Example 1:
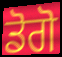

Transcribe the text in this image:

ਡੋਗੋ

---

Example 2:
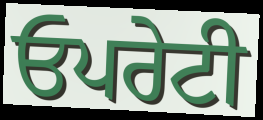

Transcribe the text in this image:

ਓਪਰੇਟੀ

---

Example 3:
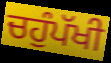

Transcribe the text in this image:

ਚਹੁੰਪੱਖੀ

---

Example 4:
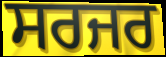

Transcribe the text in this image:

ਸਰਜਰ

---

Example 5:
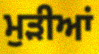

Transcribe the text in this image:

ਮੁੜੀਆਂ